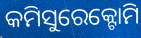
କମିସୁରେକ୍ଟୋମି